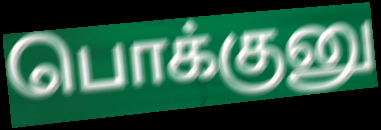
பொக்குனு